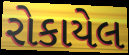
રોકાયેલ